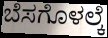
ಬೆಸಗೊಳಲ್ಕೆ